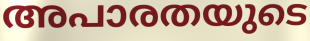
അപാരതയുടെ